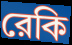
রেকি